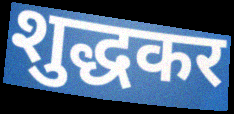
शुद्धकर